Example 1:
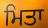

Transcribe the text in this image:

ਮਿਤਾ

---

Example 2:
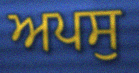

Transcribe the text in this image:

ਅਪਸੁ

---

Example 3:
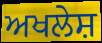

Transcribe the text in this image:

ਅਖਲੇਸ਼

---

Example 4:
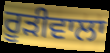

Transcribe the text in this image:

ਰੂਡ਼ੀਵਾਲਾ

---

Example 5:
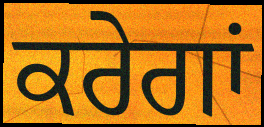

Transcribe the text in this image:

ਕਰੇਗਾਂ